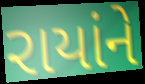
રાયાંને